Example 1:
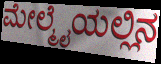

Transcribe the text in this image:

ಮೇಲ್ಮೈಯಲ್ಲಿನ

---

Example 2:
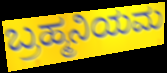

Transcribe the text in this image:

ಬ್ರಹ್ಮನಿಯಮ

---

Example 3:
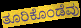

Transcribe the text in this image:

ತೂರಿಕೊಂಡೆವು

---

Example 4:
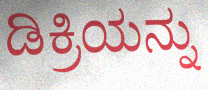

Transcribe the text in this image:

ಡಿಕ್ರಿಯನ್ನು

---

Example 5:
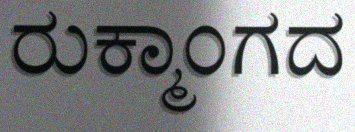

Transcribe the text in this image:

ರುಕ್ಮಾಂಗದ